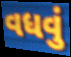
વધવું